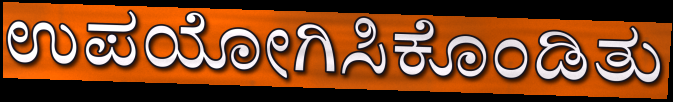
ಉಪಯೋಗಿಸಿಕೊಂಡಿತು